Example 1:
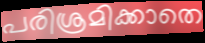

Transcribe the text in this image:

പരിശ്രമിക്കാതെ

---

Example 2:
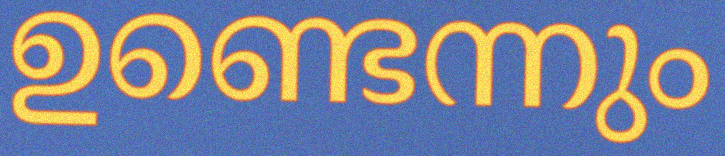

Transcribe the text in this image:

ഉണ്ടെന്നും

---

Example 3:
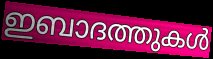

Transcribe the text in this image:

ഇബാദത്തുകൾ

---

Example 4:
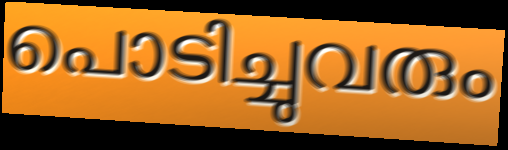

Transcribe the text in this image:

പൊടിച്ചുവരും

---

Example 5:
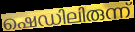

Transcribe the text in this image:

ഷെഡിലിരുന്ന്